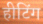
हीटिंग